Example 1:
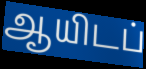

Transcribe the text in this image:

ஆயிடப்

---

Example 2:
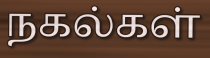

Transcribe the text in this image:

நகல்கள்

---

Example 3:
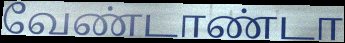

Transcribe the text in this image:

வேண்டாண்டா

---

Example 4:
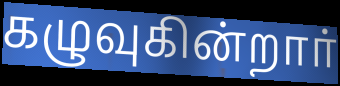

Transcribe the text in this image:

கழுவுகின்றார்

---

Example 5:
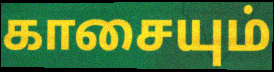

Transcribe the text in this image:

காசையும்